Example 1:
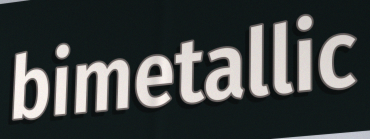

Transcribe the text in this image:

bimetallic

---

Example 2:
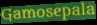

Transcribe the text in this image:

Gamosepala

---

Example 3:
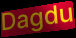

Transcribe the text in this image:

Dagdu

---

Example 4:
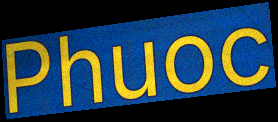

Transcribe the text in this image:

Phuoc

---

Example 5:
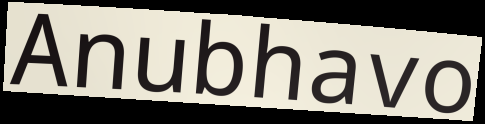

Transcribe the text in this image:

Anubhavo